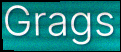
Grags